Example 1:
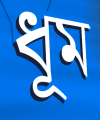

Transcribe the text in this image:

ধূম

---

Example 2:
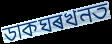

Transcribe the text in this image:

ডাকঘৰখনত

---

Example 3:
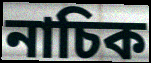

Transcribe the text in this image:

নাচিক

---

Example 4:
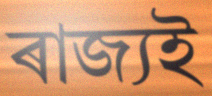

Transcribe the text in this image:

ৰাজ্যই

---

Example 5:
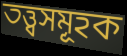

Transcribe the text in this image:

তত্ত্বসমূহক